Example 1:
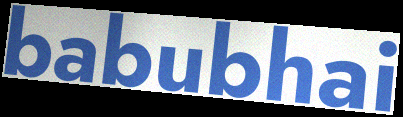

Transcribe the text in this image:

babubhai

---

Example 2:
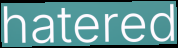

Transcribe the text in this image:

hatered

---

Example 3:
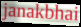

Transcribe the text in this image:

janakbhai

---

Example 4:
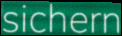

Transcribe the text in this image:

sichern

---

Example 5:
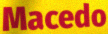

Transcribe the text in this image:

Macedo